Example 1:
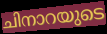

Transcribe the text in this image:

ചിനാറയുടെ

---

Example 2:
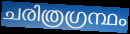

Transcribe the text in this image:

ചരിത്രഗ്രന്ഥം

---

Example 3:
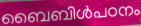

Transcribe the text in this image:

ബൈബിൾപഠനം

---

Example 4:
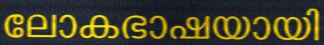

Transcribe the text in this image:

ലോകഭാഷയായി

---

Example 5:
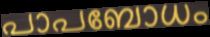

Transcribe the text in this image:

പാപബോധം